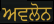
ਅਵਲੋਨ